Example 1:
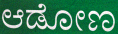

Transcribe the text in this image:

ಆಡೋಣ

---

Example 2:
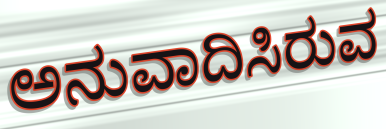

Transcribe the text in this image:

ಅನುವಾದಿಸಿರುವ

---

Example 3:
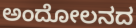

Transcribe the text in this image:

ಅಂದೋಲನದ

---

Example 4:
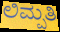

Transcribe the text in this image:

ಲಿಮ್ಪತಿ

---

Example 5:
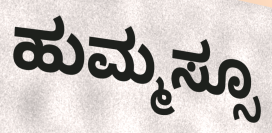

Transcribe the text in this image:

ಹುಮ್ಮಸ್ಸೂ